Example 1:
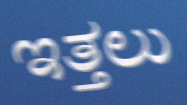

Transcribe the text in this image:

ಇತ್ತಲು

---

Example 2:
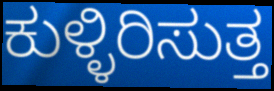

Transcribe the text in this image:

ಕುಳ್ಳಿರಿಸುತ್ತ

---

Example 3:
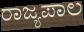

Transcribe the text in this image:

ರಾಜ್ಯಪಾಲ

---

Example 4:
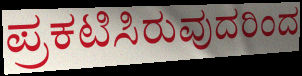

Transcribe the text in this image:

ಪ್ರಕಟಿಸಿರುವುದರಿಂದ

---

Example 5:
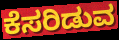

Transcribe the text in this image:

ಕೆಸರಿಡುವ